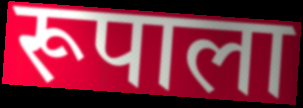
रूपाला